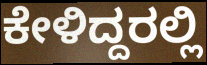
ಕೇಳಿದ್ದರಲ್ಲಿ